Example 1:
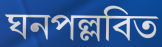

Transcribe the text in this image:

ঘনপল্লবিত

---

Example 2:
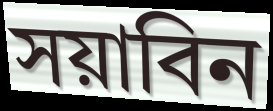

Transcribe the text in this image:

সয়াবিন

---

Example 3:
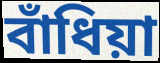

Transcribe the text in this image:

বাঁধিয়া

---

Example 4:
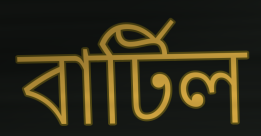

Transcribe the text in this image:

বার্টিল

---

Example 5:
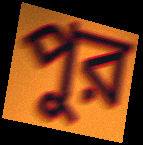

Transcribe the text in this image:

পুর